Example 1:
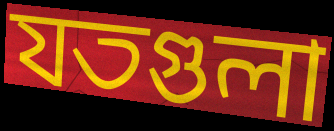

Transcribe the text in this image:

যতগুলা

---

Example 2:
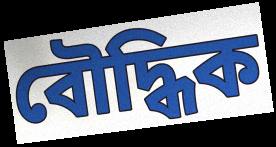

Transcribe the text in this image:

বৌদ্ধিক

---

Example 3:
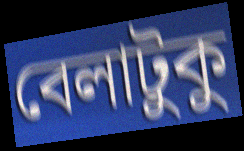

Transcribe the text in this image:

বেলাটুকু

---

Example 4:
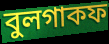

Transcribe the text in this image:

বুলগাকফ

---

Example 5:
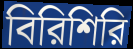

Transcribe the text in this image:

বিরিশিরি